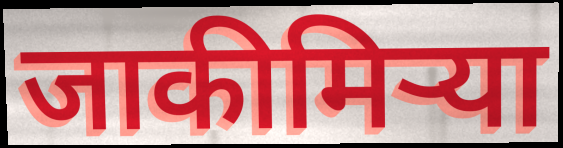
जाकीमिऱ्या